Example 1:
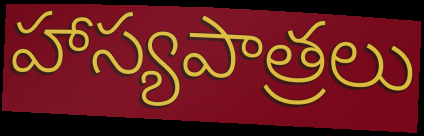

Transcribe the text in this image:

హాస్యపాత్రలు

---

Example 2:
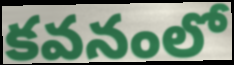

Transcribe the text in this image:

కవనంలో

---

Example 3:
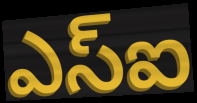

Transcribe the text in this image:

ఎస్ఐ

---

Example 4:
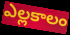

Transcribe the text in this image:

ఎల్లకాలం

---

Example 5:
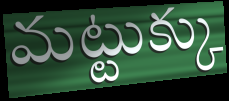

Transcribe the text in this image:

మట్టుక్కు